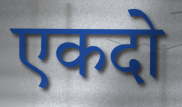
एकदो